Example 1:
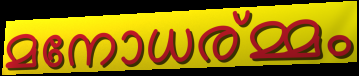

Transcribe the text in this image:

മനോധര്മ്മം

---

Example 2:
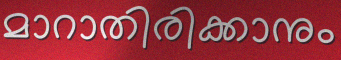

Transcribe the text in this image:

മാറാതിരിക്കാനും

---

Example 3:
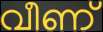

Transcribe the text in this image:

വീണ്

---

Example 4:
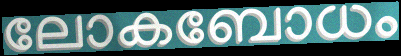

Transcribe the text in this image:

ലോകബോധം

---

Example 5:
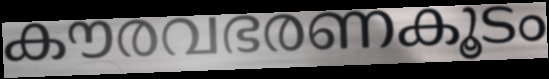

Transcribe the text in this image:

കൗരവഭരണകൂടം